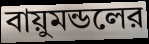
বায়ুমন্ডলের